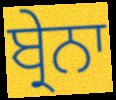
ਬ੍ਰੇਨਾ